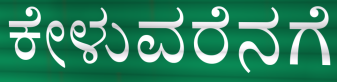
ಕೇಳುವರೆನಗೆ